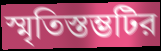
স্মৃতিস্তম্ভটির